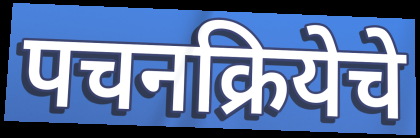
पचनक्रियेचे